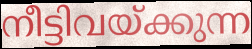
നീട്ടിവയ്ക്കുന്ന